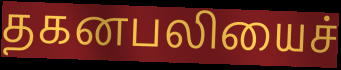
தகனபலியைச்